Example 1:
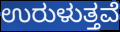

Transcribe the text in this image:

ಉರುಳುತ್ತವೆ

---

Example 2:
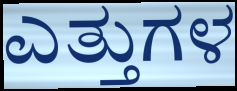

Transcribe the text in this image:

ಎತ್ತುಗಳ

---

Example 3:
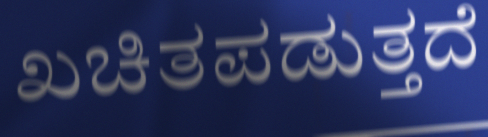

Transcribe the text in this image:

ಖಚಿತಪಡುತ್ತದೆ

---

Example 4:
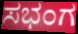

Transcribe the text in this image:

ಸಭಂಗ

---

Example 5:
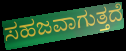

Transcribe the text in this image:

ಸಹಜವಾಗುತ್ತದೆ